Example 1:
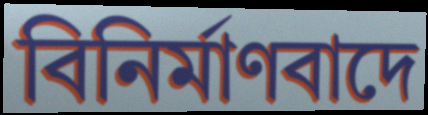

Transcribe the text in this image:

বিনিৰ্মাণবাদে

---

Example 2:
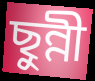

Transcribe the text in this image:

ছুন্নী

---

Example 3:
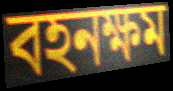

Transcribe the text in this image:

বহনক্ষম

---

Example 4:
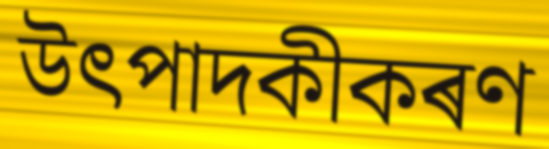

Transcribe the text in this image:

উৎপাদকীকৰণ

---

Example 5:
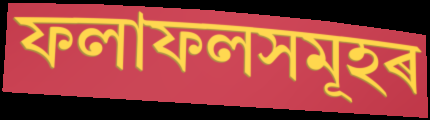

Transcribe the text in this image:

ফলাফলসমূহৰ